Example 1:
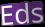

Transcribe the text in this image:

Eds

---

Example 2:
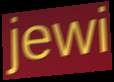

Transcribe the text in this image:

jewi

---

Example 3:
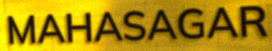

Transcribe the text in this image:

MAHASAGAR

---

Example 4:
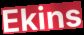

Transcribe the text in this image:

Ekins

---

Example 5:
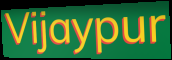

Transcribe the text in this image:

Vijaypur